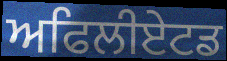
ਅਫਿਲੀਏਟਡ